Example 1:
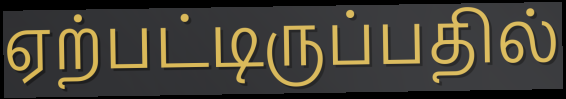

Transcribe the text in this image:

ஏற்பட்டிருப்பதில்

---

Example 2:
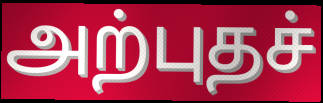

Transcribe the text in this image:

அற்புதச்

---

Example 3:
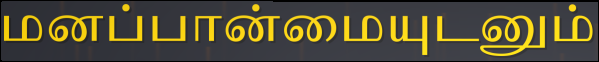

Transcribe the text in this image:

மனப்பான்மையுடனும்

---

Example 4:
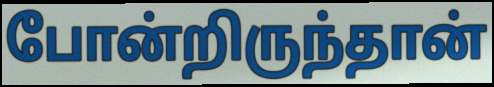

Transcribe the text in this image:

போன்றிருந்தான்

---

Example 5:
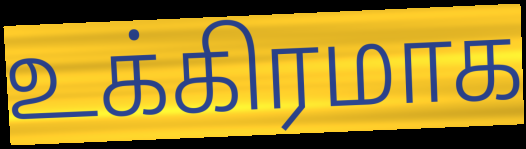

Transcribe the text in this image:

உக்கிரமாக